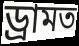
ড্ৰামত